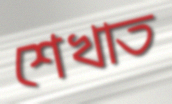
শেখাত